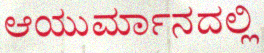
ಆಯುರ್ಮಾನದಲ್ಲಿ